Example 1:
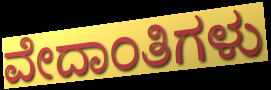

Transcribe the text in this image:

ವೇದಾಂತಿಗಳು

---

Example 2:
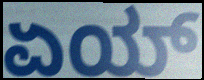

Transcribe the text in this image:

ಏಯ್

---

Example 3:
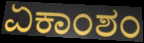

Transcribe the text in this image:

ಏಕಾಂಶಂ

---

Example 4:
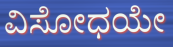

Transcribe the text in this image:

ವಿಸೋಧಯೇ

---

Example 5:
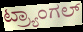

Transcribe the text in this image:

ಟ್ರ್ಯಾಂಗಲ್